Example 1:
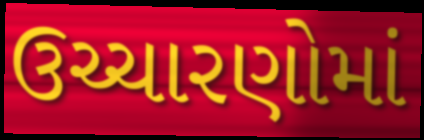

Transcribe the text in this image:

ઉચ્ચારણોમાં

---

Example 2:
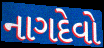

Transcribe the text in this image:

નાગદેવો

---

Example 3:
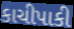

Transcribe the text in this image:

કાચીપાકી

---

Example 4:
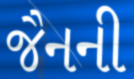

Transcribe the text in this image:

જૈનની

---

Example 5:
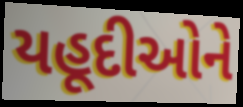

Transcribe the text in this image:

યહૂદીઓને